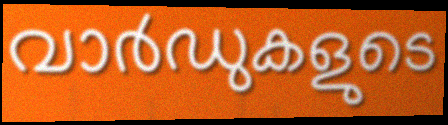
വാർഡുകളുടെ